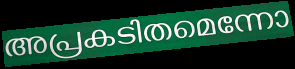
അപ്രകടിതമെന്നോ